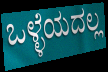
ಒಳ್ಳೆಯದಲ್ಲ